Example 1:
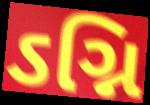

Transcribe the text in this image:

ઽગ્નિ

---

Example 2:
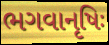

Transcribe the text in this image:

ભગવાનૃષિઃ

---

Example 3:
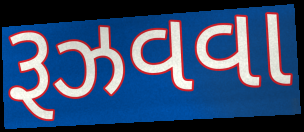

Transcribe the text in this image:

રૂઝવવા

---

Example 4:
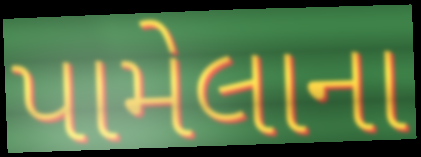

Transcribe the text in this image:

પામેલાના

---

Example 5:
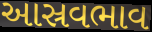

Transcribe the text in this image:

આસ્રવભાવ